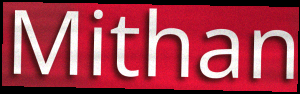
Mithan